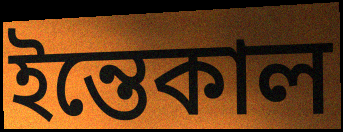
ইন্তেকাল